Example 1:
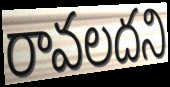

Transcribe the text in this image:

రావలదని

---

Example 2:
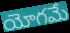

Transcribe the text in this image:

యోగమే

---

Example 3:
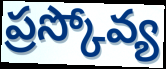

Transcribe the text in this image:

ప్రస్కోవ్య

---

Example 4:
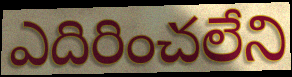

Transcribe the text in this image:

ఎదిరించలేని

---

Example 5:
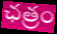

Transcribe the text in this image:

ఛత్రం